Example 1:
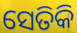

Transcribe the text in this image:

ସେତିକି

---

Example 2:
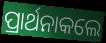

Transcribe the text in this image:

ପ୍ରାର୍ଥନାକଲେ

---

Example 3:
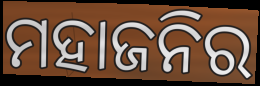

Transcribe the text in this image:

ମହାଜନିର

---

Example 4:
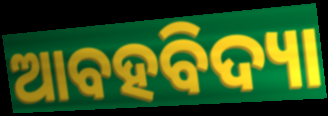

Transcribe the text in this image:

ଆବହବିଦ୍ୟା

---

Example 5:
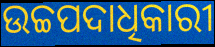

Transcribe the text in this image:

ଉଚ୍ଚପଦାଧିକାରୀ